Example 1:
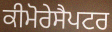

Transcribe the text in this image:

ਕੀਮੋਰੇਸੈਪਟਰ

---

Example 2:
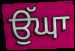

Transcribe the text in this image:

ਉੱਘਾ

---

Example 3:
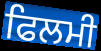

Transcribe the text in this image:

ਫਿਲਮੀ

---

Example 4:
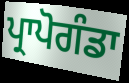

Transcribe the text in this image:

ਪ੍ਰਾਪੋਗੰਡਾ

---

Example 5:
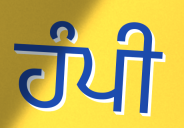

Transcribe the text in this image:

ਹੰਪੀ